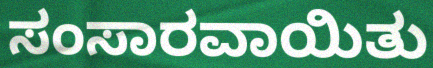
ಸಂಸಾರವಾಯಿತು